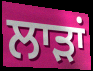
ਲਾੜਾਂ